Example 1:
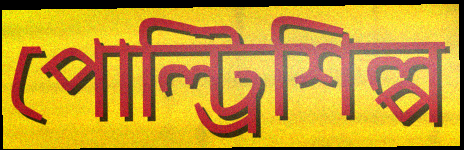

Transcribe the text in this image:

পোল্ট্রিশিল্প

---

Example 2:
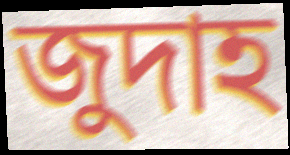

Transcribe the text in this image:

জুদাহ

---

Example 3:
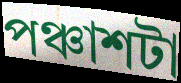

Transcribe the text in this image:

পঞ্চাশটা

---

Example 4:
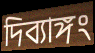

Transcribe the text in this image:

দিব্যাঙ্গং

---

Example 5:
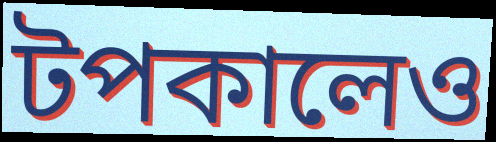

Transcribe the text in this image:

টপকালেও